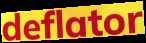
deflator